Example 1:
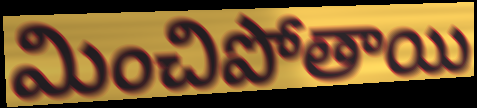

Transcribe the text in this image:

మించిపోతాయి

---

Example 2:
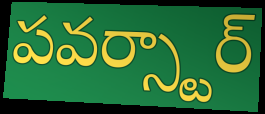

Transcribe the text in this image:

పవర్స్టార్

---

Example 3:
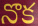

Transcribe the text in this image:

నొక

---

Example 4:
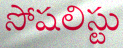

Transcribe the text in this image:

సోషలిస్టు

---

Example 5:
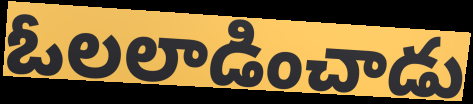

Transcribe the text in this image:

ఓలలాడించాడు